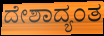
ದೇಶಾದ್ಯಂತ